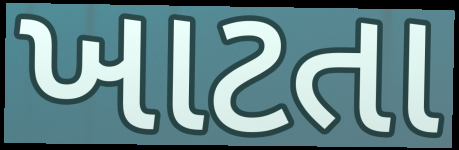
ખાટતા